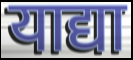
याद्या